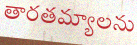
తారతమ్యాలను